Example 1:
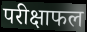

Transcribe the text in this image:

परीक्षाफल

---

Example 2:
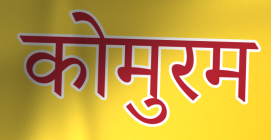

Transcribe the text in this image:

कोमुरम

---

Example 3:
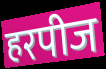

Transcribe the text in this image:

हरपीज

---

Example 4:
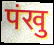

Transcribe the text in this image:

पंखु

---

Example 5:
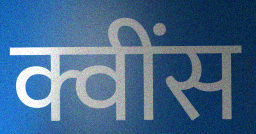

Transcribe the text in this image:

क्वींस